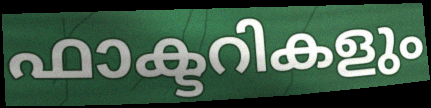
ഫാക്ടറികളും